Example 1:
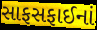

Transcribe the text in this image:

સાફસફાઈનાં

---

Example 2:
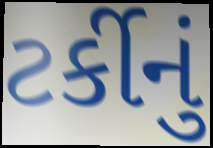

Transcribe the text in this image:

ટર્કીનું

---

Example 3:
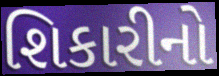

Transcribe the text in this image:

શિકારીનો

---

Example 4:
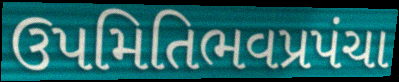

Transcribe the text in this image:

ઉપમિતિભવપ્રપંચા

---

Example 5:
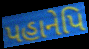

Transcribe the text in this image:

પહાનેપિ